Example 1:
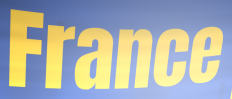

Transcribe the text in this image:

France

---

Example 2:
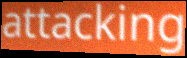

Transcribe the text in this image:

attacking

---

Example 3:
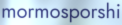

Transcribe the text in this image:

mormosporshi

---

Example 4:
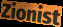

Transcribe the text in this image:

Zionist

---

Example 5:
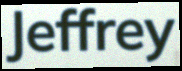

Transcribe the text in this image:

Jeffrey